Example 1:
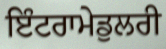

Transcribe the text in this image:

ਇੰਟਰਾਮੇਡੁਲਰੀ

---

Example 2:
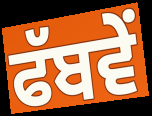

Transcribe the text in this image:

ਫੱਬਵੇਂ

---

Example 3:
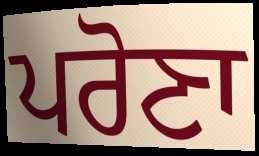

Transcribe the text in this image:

ਪਰੋਣਾ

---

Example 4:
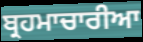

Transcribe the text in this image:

ਬ੍ਰਹਮਾਚਾਰੀਆ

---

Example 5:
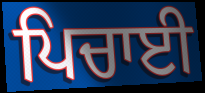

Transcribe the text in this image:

ਪਿਚਾਈ